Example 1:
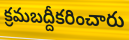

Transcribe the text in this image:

క్రమబద్దీకరించారు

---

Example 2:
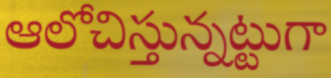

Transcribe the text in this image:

ఆలోచిస్తున్నట్టుగా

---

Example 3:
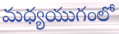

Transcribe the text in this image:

మధ్యయుగంలో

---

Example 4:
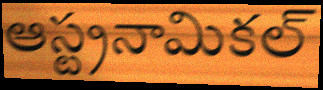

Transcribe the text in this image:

ఆస్ట్రనామికల్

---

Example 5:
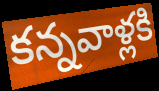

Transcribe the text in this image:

కన్నవాళ్లకి